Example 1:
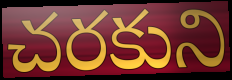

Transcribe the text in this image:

చరకుని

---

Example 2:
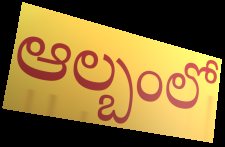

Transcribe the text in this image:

ఆల్బంలో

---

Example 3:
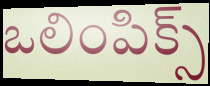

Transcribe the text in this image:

ఒలింపిక్స్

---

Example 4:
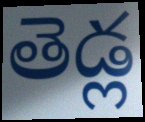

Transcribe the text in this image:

తెడ్ల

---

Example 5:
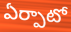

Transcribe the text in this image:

ఏర్పాటో